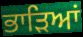
ਭਾੜਿਆਂ